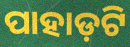
ପାହାଡ଼ଟି